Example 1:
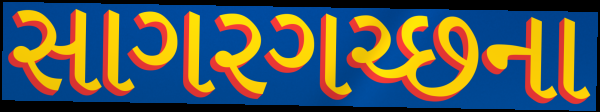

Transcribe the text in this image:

સાગરગચ્છના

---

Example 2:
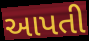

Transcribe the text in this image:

આપતી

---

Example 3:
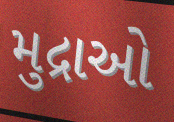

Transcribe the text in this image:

મુદ્રાઓ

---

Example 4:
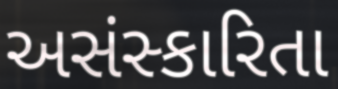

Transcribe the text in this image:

અસંસ્કારિતા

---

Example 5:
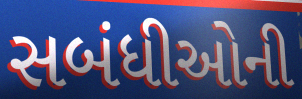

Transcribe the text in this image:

સબંધીઓની